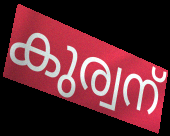
കുര്വന്